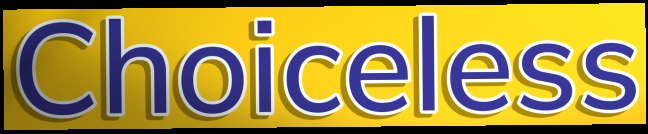
Choiceless